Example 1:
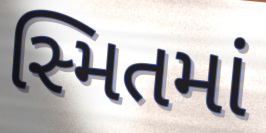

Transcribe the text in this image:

સ્મિતમાં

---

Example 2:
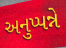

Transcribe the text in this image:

અનુપ્પન્ને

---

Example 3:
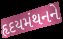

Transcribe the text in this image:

હૃદયમંથનને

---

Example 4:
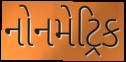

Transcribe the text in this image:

નોનમેટ્રિક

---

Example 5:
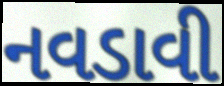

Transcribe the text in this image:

નવડાવી